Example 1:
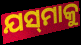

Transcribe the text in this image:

ଯସ୍‌ମାକୁ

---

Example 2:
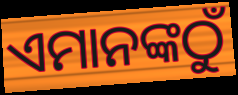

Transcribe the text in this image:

ଏମାନଙ୍କଠୁଁ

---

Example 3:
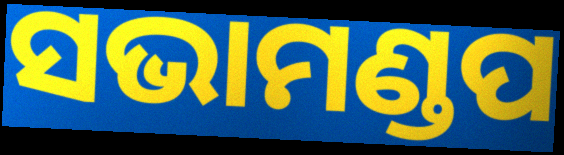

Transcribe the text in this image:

ସଭାମଣ୍ଡପ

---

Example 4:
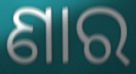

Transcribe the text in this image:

ଣାର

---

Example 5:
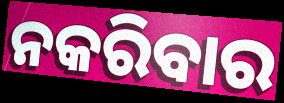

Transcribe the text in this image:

ନକରିବାର